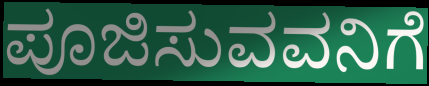
ಪೂಜಿಸುವವನಿಗೆ